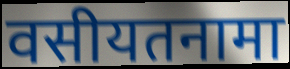
वसीयतनामा